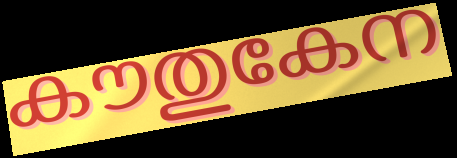
കൗതുകേന